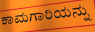
ಕಾಮಗಾರಿಯನ್ನು